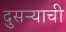
दुसऱ्याची